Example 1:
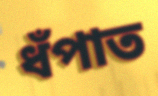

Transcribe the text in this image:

ধঁপাত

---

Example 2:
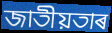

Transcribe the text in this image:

জাতীয়তাৰ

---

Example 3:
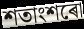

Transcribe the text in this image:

শতাংশৰো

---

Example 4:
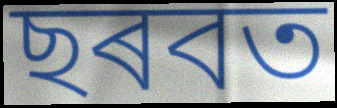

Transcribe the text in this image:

ছৰবত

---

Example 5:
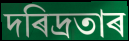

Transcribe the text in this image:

দৰিদ্ৰতাৰ